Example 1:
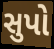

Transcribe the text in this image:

સુપો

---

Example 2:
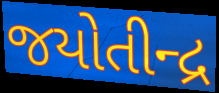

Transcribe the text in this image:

જયોતીન્દ્ર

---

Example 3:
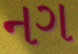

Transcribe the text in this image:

નગ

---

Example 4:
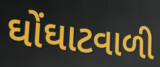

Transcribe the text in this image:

ઘોંઘાટવાળી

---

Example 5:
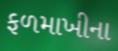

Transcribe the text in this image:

ફળમાખીના